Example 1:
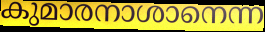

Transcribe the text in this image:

കുമാരനാശാനെന്ന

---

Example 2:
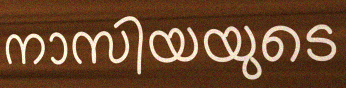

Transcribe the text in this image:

നാസിയയുടെ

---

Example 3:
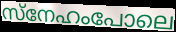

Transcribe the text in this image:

സ്നേഹംപോലെ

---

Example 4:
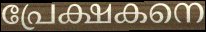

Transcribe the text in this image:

പ്രേക്ഷകനെ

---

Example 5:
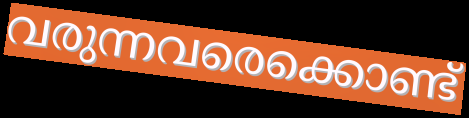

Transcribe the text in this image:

വരുന്നവരെക്കൊണ്ട്